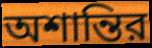
অশান্তির